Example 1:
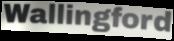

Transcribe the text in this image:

Wallingford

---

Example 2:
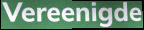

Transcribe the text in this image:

Vereenigde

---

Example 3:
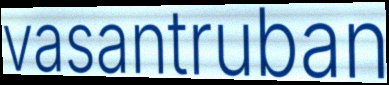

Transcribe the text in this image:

vasantruban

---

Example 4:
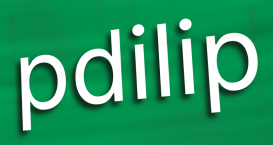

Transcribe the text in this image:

pdilip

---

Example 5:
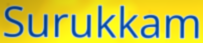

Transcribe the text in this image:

Surukkam